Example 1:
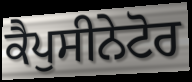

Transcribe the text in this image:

ਕੈਪੁਸੀਨੇਟੋਰ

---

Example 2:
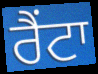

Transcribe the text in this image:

ਰੈਂਟਾ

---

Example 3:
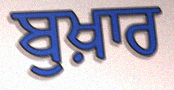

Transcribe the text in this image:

ਬੁਖ਼ਾਰ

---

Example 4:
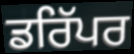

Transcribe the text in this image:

ਡਰਿੱਪਰ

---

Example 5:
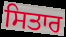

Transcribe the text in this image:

ਸਿਤਾਰ